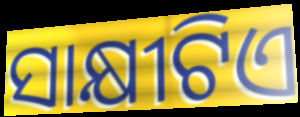
ସାକ୍ଷୀଟିଏ